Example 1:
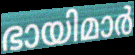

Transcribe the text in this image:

ഭായിമാർ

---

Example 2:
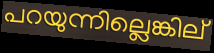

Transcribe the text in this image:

പറയുന്നില്ലെങ്കില്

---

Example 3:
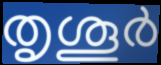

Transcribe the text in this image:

തൃശൂർ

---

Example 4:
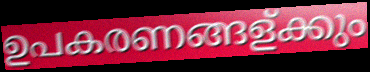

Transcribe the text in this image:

ഉപകരണങ്ങള്ക്കും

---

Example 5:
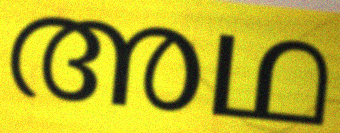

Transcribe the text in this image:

അഥ